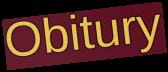
Obitury